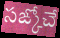
సఙ్కోచే